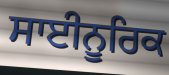
ਸਾਈਨੂਰਿਕ